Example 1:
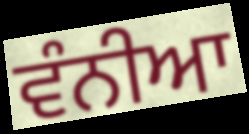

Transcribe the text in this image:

ਵੰਨੀਆ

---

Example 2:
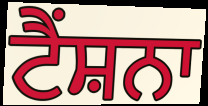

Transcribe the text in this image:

ਟੈਂਸ਼ਨਾ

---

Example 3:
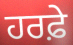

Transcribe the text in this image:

ਹਰਫ਼ੇ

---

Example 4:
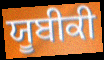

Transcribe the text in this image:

ਯੂਬੀਕੀ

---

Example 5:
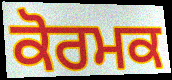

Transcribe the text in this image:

ਕੋਰਮਕ